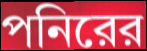
পনিরের